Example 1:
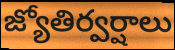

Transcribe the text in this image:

జ్యోతిర్వర్షాలు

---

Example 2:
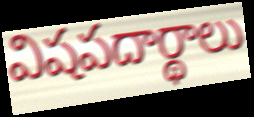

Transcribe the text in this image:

విషపదార్థాలు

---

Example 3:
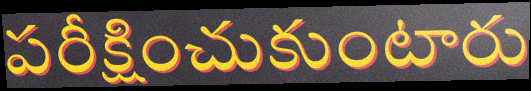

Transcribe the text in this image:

పరీక్షించుకుంటారు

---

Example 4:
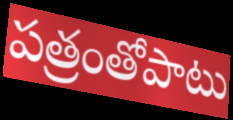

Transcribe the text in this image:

పత్రంతోపాటు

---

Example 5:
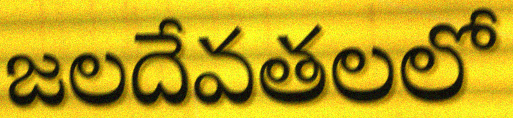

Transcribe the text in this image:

జలదేవతలలో